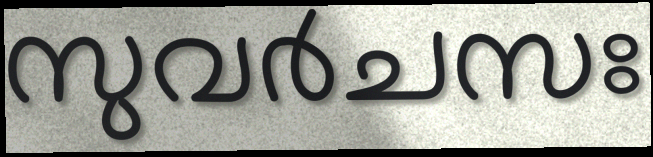
സുവർചസഃ